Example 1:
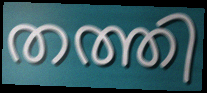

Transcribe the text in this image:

തത്തി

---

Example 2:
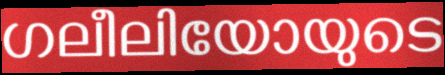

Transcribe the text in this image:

ഗലീലിയോയുടെ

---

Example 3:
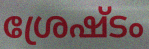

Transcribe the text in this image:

ശ്രേഷ്ടം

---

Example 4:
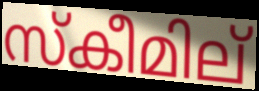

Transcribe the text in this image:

സ്കീമില്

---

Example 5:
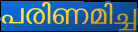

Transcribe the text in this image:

പരിണമിച്ച